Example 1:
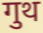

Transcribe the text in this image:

गुथ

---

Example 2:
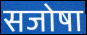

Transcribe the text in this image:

सजोषा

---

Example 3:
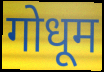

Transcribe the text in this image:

गोधूम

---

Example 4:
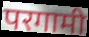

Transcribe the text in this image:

परगामी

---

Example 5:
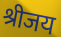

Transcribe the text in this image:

श्रीजय